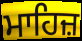
ਮਾਹਿਜ਼